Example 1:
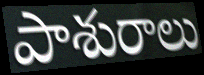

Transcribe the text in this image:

పాశురాలు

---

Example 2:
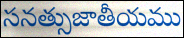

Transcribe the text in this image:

సనత్సుజాతీయము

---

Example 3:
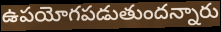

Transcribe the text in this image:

ఉపయోగపడుతుందన్నారు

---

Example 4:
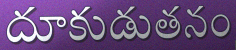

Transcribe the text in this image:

దూకుడుతనం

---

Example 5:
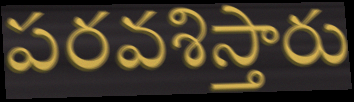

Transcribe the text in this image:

పరవశిస్తారు